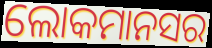
ଲୋକମାନସର